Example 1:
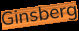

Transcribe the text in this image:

Ginsberg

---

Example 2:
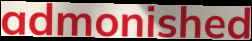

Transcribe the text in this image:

admonished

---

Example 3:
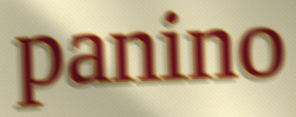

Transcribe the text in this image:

panino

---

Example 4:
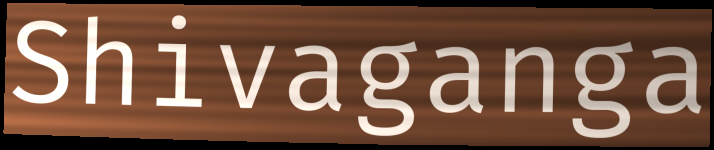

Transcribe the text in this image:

Shivaganga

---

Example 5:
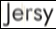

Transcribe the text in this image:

Jersy